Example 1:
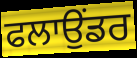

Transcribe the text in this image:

ਫਲਾਉਂਡਰ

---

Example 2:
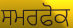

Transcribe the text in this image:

ਸਮਰਫੋਕ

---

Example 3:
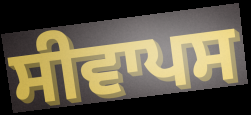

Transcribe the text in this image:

ਸੀਵਾਪਸ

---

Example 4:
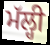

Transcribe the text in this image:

ਮੱਲ੍ਹੀ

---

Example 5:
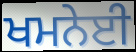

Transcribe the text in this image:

ਖਮਨੇਈ